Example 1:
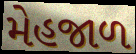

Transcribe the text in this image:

મેહજાળ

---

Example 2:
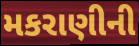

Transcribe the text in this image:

મકરાણીની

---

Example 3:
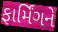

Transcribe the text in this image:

ફાર્મિંગને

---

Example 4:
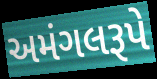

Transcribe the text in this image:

અમંગલરૂપે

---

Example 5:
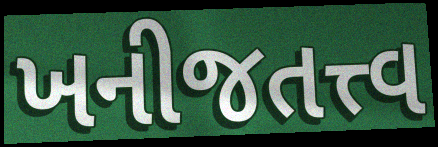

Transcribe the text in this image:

ખનીજતત્ત્વ